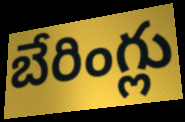
బేరింగ్లు